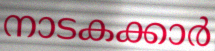
നാടകക്കാർ